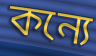
কন্যে